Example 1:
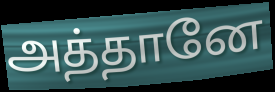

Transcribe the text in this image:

அத்தானே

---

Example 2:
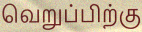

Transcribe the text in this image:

வெறுப்பிற்கு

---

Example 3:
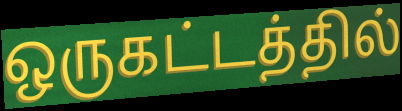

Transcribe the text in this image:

ஒருகட்டத்தில்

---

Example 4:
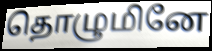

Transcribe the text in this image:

தொழுமினே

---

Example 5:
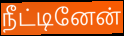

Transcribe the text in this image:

நீட்டினேன்